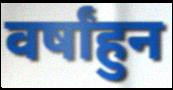
वर्षांहुन